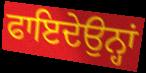
ਫਾਇਦੇਉਨ੍ਹਾਂ